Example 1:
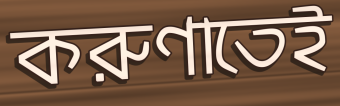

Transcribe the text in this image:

করুণাতেই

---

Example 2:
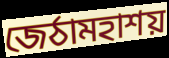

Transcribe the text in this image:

জেঠামহাশয়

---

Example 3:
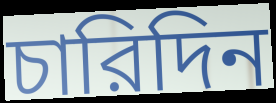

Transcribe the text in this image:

চারিদিন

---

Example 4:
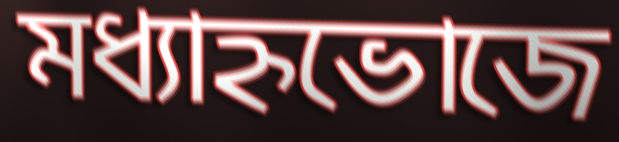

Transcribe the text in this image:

মধ্যাহ্নভোজে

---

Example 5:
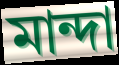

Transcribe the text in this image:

মান্দা